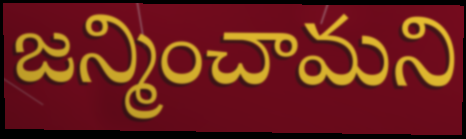
జన్మించామని